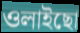
ওলাইছো